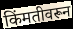
किंमतीवरून